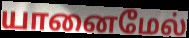
யானைமேல்